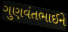
ગુણવંતભાઈને